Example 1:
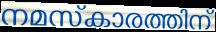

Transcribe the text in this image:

നമസ്‌കാരത്തിന്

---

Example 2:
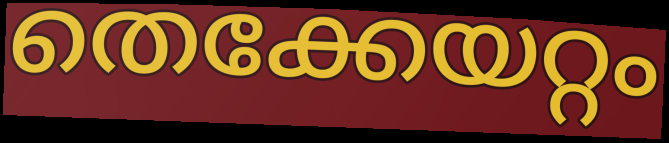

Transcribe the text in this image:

തെക്കേയറ്റം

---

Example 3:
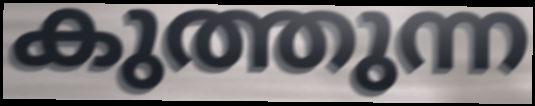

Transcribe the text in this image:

കുത്തുന്ന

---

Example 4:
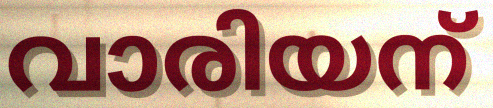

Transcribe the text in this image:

വാരിയന്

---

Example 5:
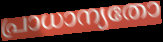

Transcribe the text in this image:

പ്രാധാന്യതോ